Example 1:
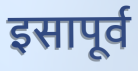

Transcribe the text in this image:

इसापूर्व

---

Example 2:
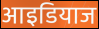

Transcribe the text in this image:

आइडियाज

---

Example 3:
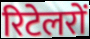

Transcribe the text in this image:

रिटेलरों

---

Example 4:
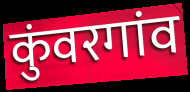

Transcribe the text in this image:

कुंवरगांव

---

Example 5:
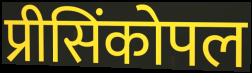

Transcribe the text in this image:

प्रीसिंकोपल